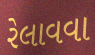
રેલાવવા